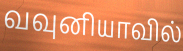
வவுனியாவில்